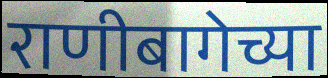
राणीबागेच्या